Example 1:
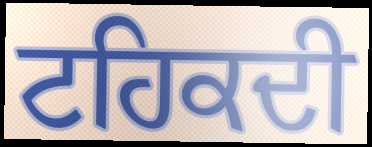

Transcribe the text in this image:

ਟਹਿਕਦੀ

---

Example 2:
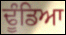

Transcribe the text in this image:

ਢੂੰਡਿਆ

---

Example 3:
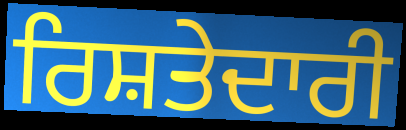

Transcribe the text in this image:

ਰਿਸ਼ਤੇਦਾਰੀ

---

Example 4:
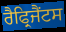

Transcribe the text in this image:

ਰੈਫ੍ਰਿਜੈਂਟਸ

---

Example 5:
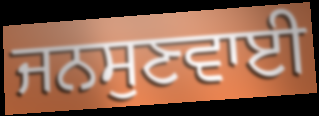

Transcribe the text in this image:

ਜਨਸੁਣਵਾਈ